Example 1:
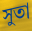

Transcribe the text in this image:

সুতা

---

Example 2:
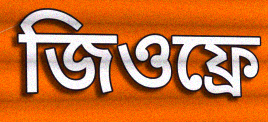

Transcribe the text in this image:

জিওফ্ৰে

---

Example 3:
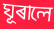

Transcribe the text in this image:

ঘূৰালে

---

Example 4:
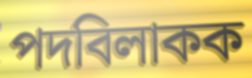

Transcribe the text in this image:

পদবিলাকক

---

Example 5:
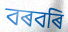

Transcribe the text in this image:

বৰবৰি